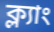
ক্ল্যাং